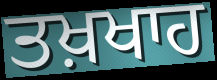
ਤਖ਼ਖਾਹ